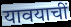
यावयाचीं